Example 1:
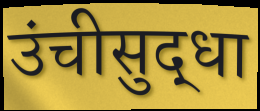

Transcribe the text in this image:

उंचीसुद्धा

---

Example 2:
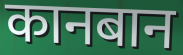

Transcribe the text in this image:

कानबान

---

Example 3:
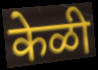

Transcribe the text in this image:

केळी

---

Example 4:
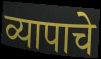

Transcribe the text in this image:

व्यापाचे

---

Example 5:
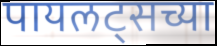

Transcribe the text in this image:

पायलट्सच्या